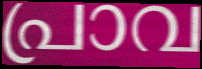
പ്രാവ